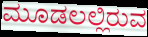
ಮೂಡಲಲ್ಲಿರುವ